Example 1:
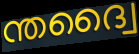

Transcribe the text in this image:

ന്തദ്വൈ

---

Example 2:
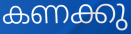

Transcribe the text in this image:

കണക്കു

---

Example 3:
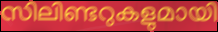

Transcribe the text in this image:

സിലിണ്ടറുകളുമായി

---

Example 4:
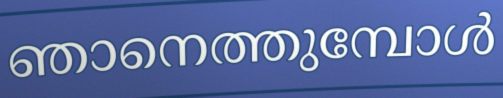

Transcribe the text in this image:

ഞാനെത്തുമ്പോൾ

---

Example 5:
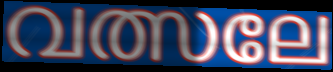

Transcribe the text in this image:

വത്സലേ